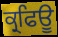
ਕ੍ਰਫਿਊ